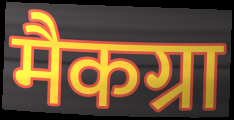
मैकग्रा